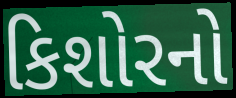
કિશોરનો